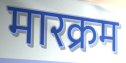
मारक्रम